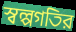
স্বল্পগতির